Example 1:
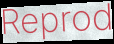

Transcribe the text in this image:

Reprod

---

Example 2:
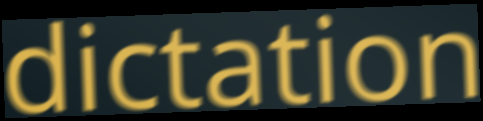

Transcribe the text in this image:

dictation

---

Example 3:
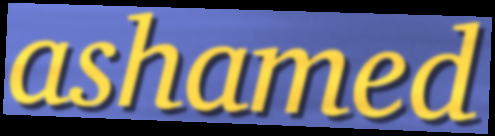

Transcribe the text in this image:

ashamed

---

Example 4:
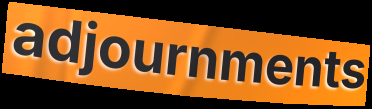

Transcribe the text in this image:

adjournments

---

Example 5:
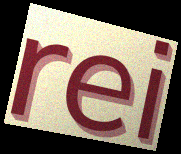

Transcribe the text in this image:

rei